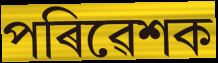
পৰিৱেশক